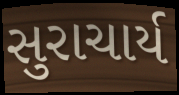
સુરાચાર્ય